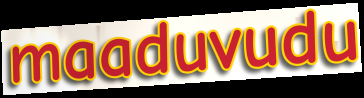
maaduvudu